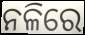
ନଳିରେ